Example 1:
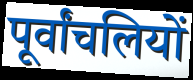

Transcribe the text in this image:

पूर्वांचलियों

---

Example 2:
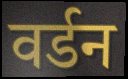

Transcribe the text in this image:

वर्डन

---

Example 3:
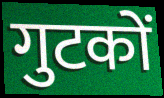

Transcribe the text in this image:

गुटकों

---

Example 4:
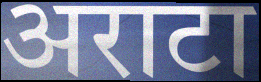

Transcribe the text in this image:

अराटा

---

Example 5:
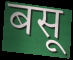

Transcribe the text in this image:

बसू